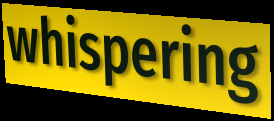
whispering